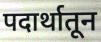
पदार्थातून